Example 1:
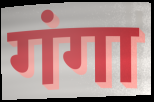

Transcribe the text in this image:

गंगा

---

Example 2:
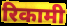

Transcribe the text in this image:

रिकामी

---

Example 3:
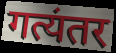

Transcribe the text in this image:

गत्यंतर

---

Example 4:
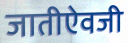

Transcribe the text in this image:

जातीऐवजी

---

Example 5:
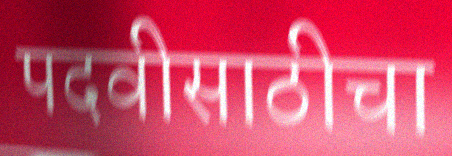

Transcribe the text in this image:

पदवीसाठीचा